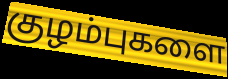
குழம்புகளை